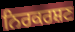
ਨਿਰਕਰਸ਼ਣ